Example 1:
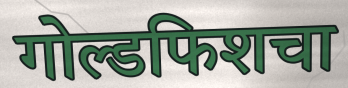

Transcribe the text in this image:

गोल्डफिशचा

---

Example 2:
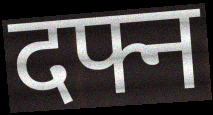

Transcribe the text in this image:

दफ्न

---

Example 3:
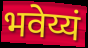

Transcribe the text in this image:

भवेय्यं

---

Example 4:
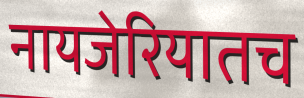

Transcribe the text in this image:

नायजेरियातच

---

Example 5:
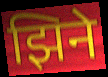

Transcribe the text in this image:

झिने